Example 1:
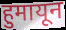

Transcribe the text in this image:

हुमायून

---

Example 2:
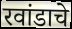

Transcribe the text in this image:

रवांडाचे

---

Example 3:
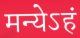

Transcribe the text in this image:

मन्येऽहं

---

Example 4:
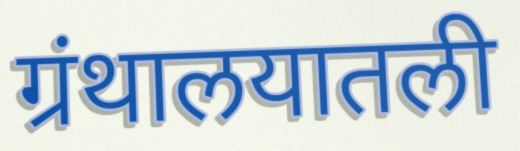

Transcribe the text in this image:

ग्रंथालयातली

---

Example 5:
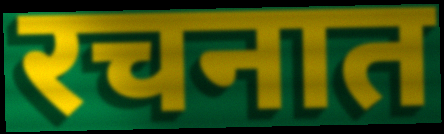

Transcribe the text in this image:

रचनात